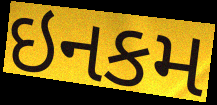
ઇનકમ